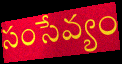
సంసేవ్యం